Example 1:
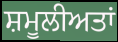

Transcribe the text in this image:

ਸ਼ਮੂਲੀਅਤਾਂ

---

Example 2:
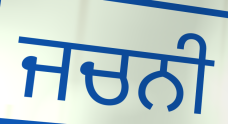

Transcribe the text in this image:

ਜਚਨੀ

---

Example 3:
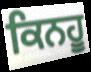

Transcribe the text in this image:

ਕਿਨਹੂ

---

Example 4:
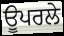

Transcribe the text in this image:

ਊਪਰਲੇ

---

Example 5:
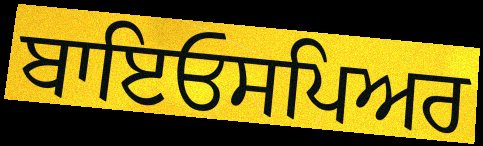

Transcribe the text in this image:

ਬਾਇਓਸਪਿਅਰ